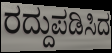
ರದ್ದುಪಡಿಸಿದ